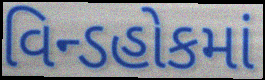
વિન્ડહોકમાં